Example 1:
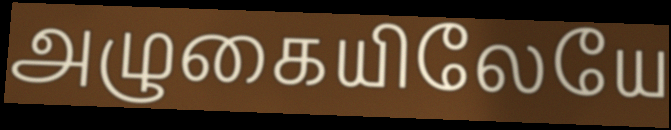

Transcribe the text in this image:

அழுகையிலேயே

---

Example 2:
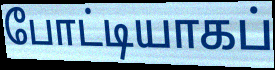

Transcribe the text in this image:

போட்டியாகப்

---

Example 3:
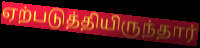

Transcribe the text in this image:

ஏற்படுத்தியிருந்தார்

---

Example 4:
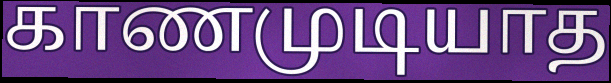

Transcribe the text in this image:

காணமுடியாத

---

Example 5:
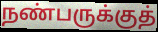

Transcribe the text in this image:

நண்பருக்குத்